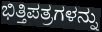
ಭಿತ್ತಿಪತ್ರಗಳನ್ನು